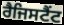
ਰੈਜਿਸਟੈਂਟ